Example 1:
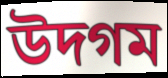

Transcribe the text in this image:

উদগম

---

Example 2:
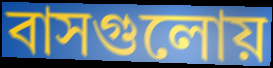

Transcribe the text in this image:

বাসগুলোয়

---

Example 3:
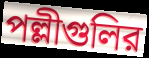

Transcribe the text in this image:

পল্লীগুলির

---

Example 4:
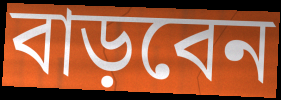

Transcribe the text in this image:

বাড়বেন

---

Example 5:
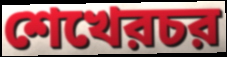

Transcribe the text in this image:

শেখেরচর